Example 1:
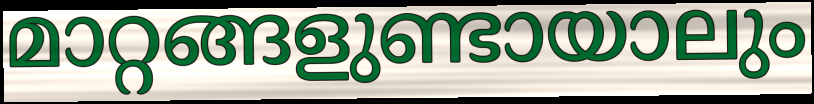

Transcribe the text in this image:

മാറ്റങ്ങളുണ്ടായാലും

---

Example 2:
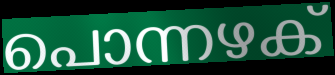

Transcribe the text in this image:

പൊന്നഴക്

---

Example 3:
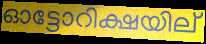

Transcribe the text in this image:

ഓട്ടോറിക്ഷയില്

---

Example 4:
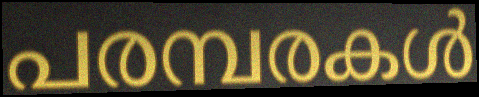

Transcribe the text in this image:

പരമ്പരകൾ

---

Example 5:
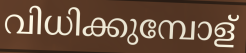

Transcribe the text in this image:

വിധിക്കുമ്പോള്